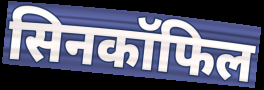
सिनकॉफिल